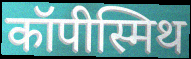
कॉपीस्मिथ